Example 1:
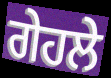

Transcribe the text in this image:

ਗੇਹਲੇ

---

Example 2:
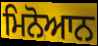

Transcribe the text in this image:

ਮਿਨੋਆਨ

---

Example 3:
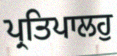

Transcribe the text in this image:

ਪ੍ਰਤਿਪਾਲਹੁ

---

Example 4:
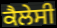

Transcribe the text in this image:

ਕੈਲੇਸੀ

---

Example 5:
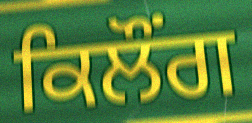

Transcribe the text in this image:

ਕਿਲੌਂਗ